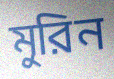
মুরিন